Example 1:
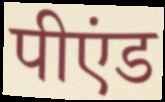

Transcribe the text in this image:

पीएंड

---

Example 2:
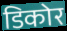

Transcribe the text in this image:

डिकोर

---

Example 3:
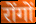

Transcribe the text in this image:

रोंगों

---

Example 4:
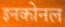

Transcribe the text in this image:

इनकोनल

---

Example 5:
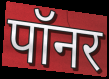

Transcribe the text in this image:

पॉनर